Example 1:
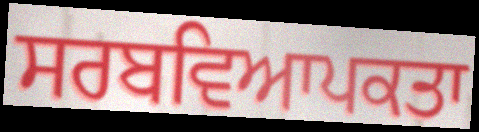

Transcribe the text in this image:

ਸਰਬਵਿਆਪਕਤਾ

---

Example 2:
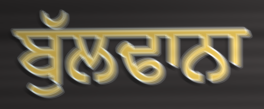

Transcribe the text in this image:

ਬੁੱਲਢਾਨਾ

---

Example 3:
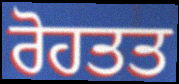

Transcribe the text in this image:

ਰੋਹਤਤ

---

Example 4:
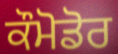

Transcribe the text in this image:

ਕੌਮੋਡੋਰ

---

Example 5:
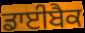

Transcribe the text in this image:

ਡਾਈਬੈਕ